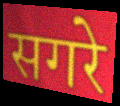
सगरे